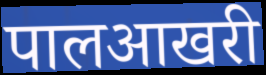
पालआखरी